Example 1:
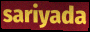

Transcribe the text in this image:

sariyada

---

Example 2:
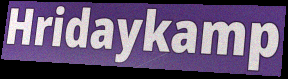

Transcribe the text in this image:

Hridaykamp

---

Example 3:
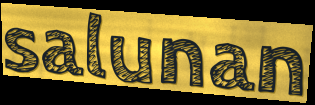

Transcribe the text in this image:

salunan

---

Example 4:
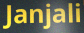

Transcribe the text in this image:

Janjali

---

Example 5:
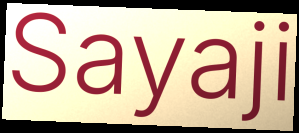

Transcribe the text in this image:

Sayaji